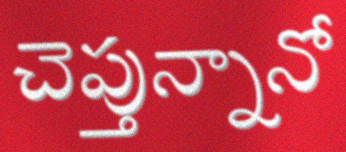
చెప్తున్నానో